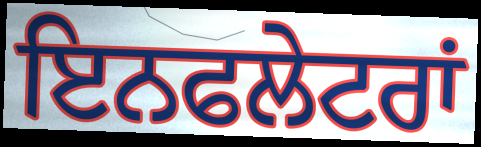
ਇਨਫਲੇਟਰਾਂ